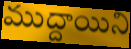
ముద్దాయిని